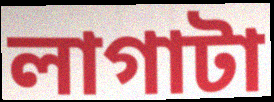
লাগাটা